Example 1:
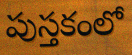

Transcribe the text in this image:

పుస్తకంలో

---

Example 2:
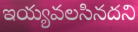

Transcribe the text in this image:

ఇయ్యవలసినదని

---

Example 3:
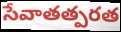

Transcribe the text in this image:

సేవాతత్పరత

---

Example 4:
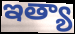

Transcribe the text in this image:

ఇత్యా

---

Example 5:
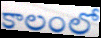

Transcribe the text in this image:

కాలంలో